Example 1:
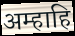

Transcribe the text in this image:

अम्हाहि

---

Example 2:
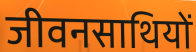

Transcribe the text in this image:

जीवनसाथियों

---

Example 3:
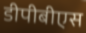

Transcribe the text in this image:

डीपीबीएस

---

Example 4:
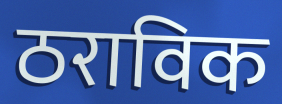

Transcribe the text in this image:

ठराविक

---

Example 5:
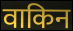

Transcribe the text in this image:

वाकिन